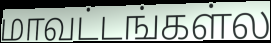
மாவட்டங்கள்ல